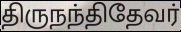
திருநந்திதேவர்